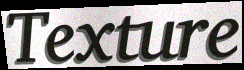
Texture